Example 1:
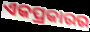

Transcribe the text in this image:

ଏକପ୍ରକାରର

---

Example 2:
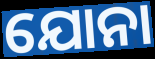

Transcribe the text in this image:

ଯୋନା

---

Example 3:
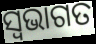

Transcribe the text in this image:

ସ୍ଵଭାଗତ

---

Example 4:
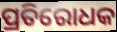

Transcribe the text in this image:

ପ୍ରତିରୋଧକ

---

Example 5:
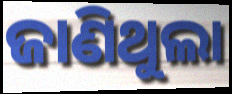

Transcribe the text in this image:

ଜାଣିଥୁଲା